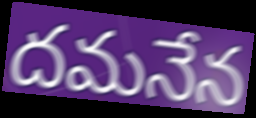
దమనేన